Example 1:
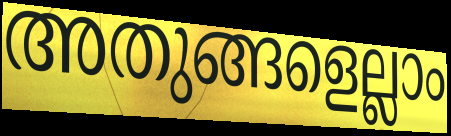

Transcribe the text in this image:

അതുങ്ങളെല്ലാം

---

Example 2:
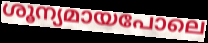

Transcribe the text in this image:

ശൂന്യമായപോലെ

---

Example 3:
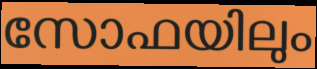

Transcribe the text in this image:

സോഫയിലും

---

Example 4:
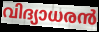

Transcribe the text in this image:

വിദ്യാധരൻ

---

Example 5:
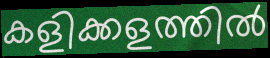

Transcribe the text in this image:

കളിക്കളത്തിൽ